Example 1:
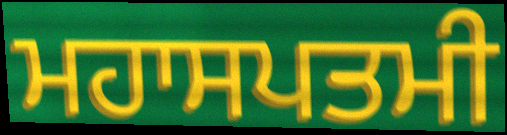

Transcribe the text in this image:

ਮਹਾਸਪਤਮੀ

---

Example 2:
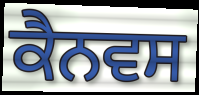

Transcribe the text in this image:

ਕੈਨਵਸ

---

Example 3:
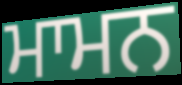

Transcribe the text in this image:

ਮਾਮਨ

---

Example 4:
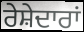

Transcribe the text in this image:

ਰੇਸ਼ੇਦਾਰਾਂ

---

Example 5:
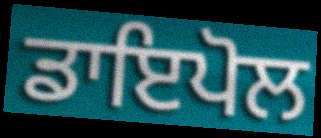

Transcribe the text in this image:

ਡਾਇਪੋਲ